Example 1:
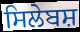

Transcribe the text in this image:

ਸਿਲੇਬਸ਼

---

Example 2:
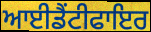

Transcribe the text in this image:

ਆਈਡੈਂਟੀਫਾਇਰ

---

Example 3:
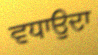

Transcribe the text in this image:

ਵਧਾਉਦਾ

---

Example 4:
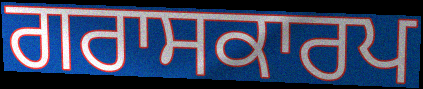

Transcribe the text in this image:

ਗਰਾਸਕਾਰਪ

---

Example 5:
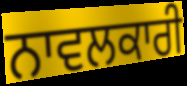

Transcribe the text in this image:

ਨਾਵਲਕਾਰੀ